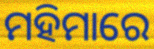
ମହିମାରେ